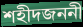
শহীদজননী